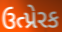
ઉત્પ્રેરક